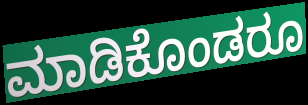
ಮಾಡಿಕೊಂಡರೂ